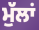
ਮੁੱਲਾਂ